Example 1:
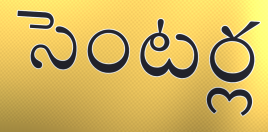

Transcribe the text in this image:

సెంటర్ల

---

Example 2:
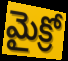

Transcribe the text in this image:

మైక్రో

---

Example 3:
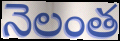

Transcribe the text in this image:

నెలంత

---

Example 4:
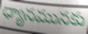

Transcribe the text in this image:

ధ్యానమునకు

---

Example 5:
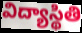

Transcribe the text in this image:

విద్యాస్థితి